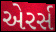
એરર્સ